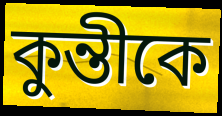
কুন্তীকে